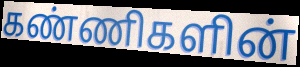
கண்ணிகளின்